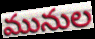
మునుల